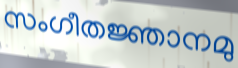
സംഗീതജ്ഞാനമു